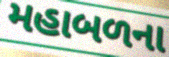
મહાબળના